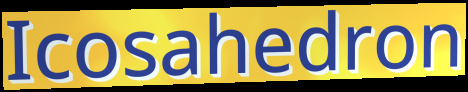
Icosahedron